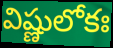
విష్ణులోకః